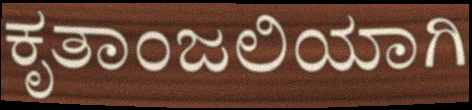
ಕೃತಾಂಜಲಿಯಾಗಿ